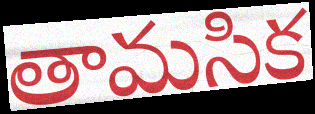
తామసిక